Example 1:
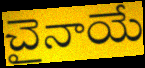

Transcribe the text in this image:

చైనాయే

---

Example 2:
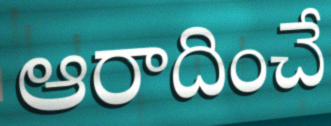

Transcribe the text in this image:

ఆరాదించే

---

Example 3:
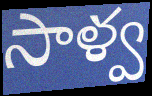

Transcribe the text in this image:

సాళ్వ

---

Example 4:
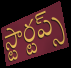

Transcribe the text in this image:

స్టార్టప్స్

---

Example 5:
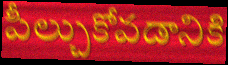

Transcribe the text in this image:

పీల్చుకోవడానికి